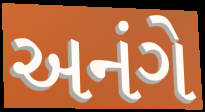
અનંગે